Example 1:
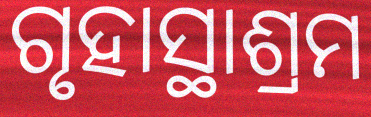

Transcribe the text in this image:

ଗୃହାସ୍ଥାଶ୍ରମ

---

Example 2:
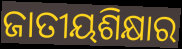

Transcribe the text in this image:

ଜାତୀୟଶିକ୍ଷାର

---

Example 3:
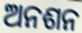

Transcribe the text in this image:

ଅନଶନ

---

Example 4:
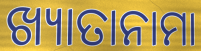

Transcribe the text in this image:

ଖ୍ୟାତାନାମା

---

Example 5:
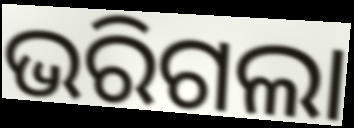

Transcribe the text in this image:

ଭରିଗଲା